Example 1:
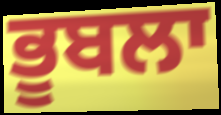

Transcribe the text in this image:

ਭੂਬਲਾ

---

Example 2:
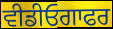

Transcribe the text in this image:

ਵੀਡੀਓਗਾਫਰ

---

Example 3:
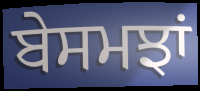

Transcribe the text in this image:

ਬੇਸਮਝਾਂ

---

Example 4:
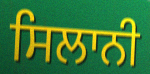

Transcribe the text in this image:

ਸਿਲਾਨੀ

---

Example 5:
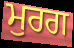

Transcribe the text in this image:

ਮੁਰਗ